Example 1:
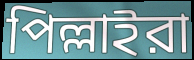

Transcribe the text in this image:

পিল্লাইরা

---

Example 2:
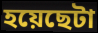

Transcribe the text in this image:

হয়েছেটা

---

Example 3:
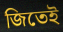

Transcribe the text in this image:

জিতেই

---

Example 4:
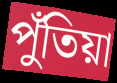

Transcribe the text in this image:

পুঁতিয়া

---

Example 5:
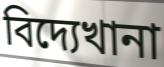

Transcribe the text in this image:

বিদ্যেখানা